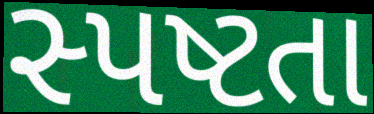
સ્પષ્ટતા